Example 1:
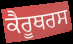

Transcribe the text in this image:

ਕੈਰੂਥਰਸ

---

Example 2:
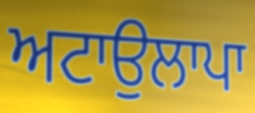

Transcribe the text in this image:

ਅਟਾਉਲਾਪਾ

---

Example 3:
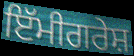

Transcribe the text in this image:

ਇੱਮੀਗਰੇਸ਼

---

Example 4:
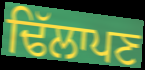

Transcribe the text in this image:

ਢਿੱਲਾਪਣ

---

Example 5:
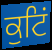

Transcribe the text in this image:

ਕੁਟਿਂ